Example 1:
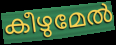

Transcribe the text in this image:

കീഴുമേൽ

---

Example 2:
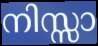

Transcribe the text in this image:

നിസ്സാ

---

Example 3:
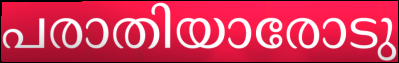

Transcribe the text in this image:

പരാതിയാരോടു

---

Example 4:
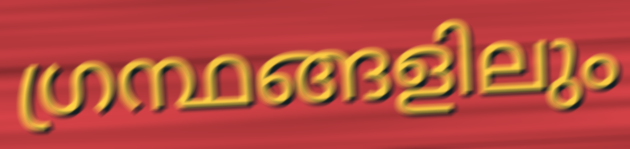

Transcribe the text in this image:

ഗ്രന്ഥങ്ങളിലും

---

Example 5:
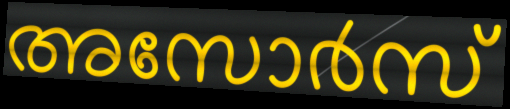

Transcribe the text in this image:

അസോർസ്